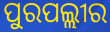
ପୁରପଲ୍ଲୀର